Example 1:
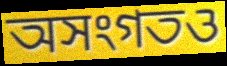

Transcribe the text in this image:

অসংগতও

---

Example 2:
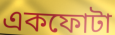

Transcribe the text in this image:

একফোটা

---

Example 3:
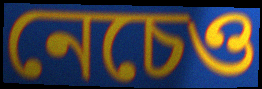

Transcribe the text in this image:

নেচেও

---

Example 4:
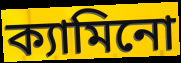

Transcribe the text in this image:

ক্যামিনো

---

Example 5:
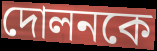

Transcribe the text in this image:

দোলনকে